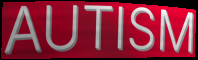
AUTISM